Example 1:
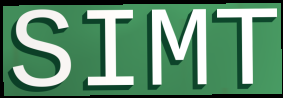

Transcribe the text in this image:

SIMT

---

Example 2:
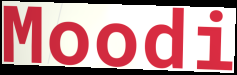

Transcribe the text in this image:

Moodi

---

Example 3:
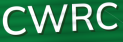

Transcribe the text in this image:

CWRC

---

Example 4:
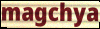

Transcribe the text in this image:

magchya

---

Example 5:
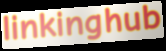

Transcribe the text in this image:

linkinghub